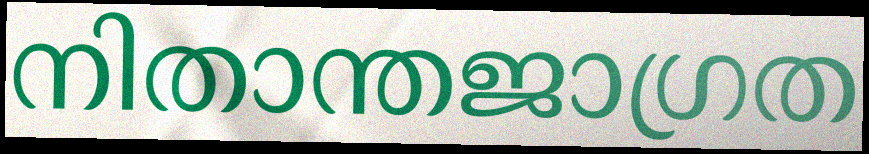
നിതാന്തജാഗ്രത